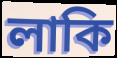
লাকি